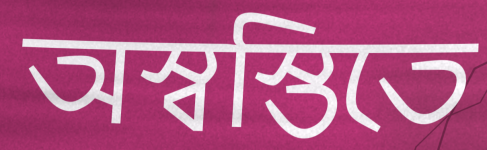
অস্বস্তিতে